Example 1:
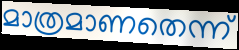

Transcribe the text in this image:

മാത്രമാണതെന്ന്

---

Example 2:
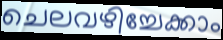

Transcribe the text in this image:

ചെലവഴിച്ചേക്കാം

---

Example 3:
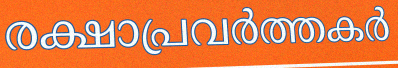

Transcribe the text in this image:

രക്ഷാപ്രവർത്തകർ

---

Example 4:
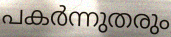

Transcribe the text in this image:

പകർന്നുതരും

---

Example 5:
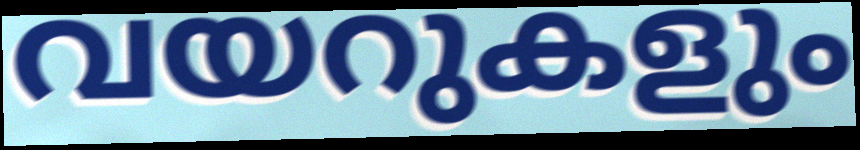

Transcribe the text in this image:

വയറുകളും